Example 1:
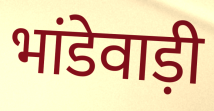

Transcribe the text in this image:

भांडेवाड़ी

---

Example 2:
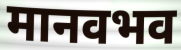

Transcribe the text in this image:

मानवभव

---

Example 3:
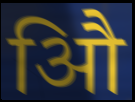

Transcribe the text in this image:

औि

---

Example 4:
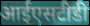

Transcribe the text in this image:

आईएसटीडी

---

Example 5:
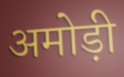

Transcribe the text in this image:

अमोड़ी